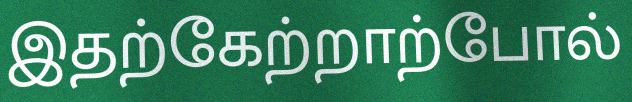
இதற்கேற்றாற்போல்